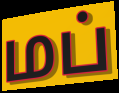
மப்